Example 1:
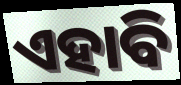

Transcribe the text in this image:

ଏହାବି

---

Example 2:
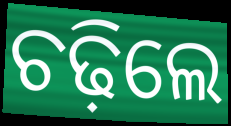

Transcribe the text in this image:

ଚଢ଼ିଲେ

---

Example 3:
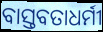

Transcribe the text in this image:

ବାସ୍ତବତାଧର୍ମୀ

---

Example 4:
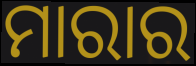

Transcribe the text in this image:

ମାରାର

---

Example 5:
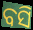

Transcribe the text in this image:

ବସି